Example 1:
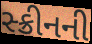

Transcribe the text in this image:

સ્ક્રીનની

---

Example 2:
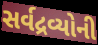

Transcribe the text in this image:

સર્વદ્રવ્યોની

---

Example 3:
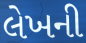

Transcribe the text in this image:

લેખની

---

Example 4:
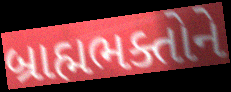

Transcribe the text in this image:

બ્રાહ્મભક્તોને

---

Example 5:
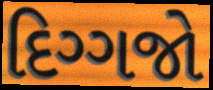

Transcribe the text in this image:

દિગ્ગજો